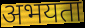
अभयता